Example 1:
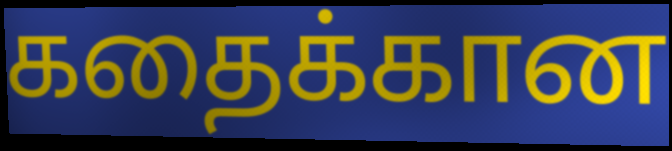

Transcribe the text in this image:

கதைக்கான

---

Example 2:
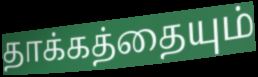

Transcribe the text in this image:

தாக்கத்தையும்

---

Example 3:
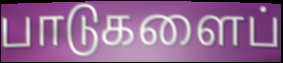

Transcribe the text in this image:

பாடுகளைப்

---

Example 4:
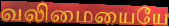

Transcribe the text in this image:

வலிமையையே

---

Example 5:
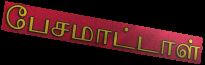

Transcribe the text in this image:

பேசமாட்டாள்